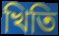
খিতি